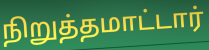
நிறுத்தமாட்டார்